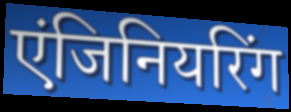
एंजिनियरिंग